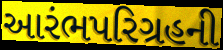
આરંભપરિગ્રહની